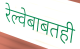
रेल्वेबाबतही